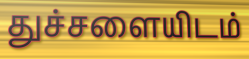
துச்சளையிடம்